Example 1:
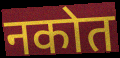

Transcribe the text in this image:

नकोत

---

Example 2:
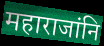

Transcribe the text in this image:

महाराजांनि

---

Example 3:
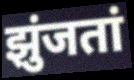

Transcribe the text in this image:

झुंजतां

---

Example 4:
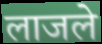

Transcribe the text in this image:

लाजले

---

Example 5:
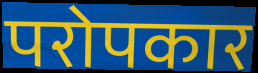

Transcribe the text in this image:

परोपकार